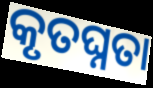
କୃତଘ୍ନତା